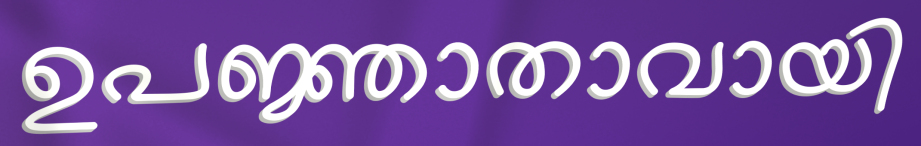
ഉപജ്ഞാതാവായി